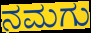
ನಮಗು